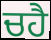
ਚਹੈ